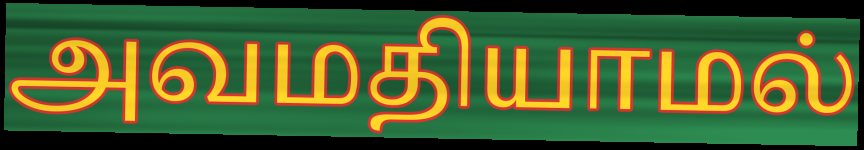
அவமதியாமல்